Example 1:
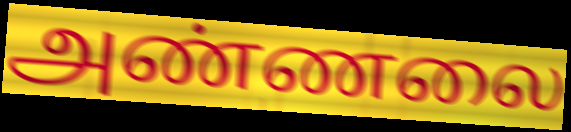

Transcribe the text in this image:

அண்ணலை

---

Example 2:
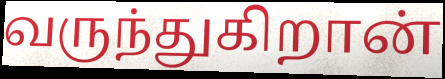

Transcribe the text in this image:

வருந்துகிறான்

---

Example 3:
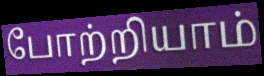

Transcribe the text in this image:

போற்றியாம்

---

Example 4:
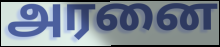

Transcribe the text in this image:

அரனை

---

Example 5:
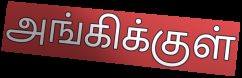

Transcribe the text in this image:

அங்கிக்குள்